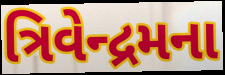
ત્રિવેન્દ્રમના